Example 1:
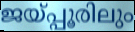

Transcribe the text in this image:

ജയ്പ്പൂരിലും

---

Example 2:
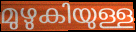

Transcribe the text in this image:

മുഴുകിയുള്ള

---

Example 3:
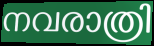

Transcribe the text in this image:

നവരാത്രി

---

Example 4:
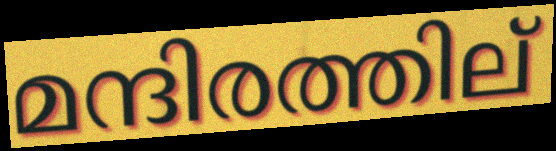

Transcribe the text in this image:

മന്ദിരത്തില്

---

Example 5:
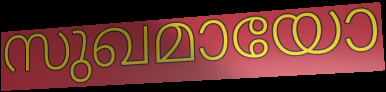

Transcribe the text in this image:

സുഖമായോ